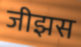
जीझस